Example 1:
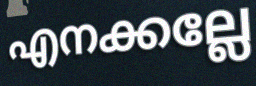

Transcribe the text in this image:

എനക്കല്ലേ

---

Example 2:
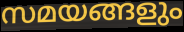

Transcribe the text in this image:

സമയങ്ങളും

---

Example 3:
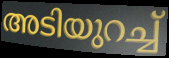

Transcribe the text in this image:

അടിയുറച്ച്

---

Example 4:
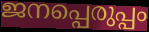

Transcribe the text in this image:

ജനപ്പെരുപ്പം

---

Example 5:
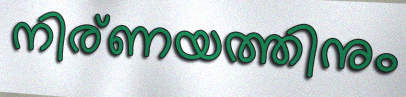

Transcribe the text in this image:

നിര്ണയത്തിനും